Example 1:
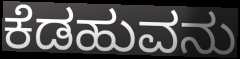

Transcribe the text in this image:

ಕೆಡಹುವನು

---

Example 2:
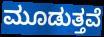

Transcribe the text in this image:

ಮೂಡುತ್ತವೆ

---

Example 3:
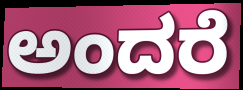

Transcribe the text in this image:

ಅಂದರೆ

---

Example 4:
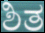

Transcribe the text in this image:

ಶಿತ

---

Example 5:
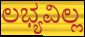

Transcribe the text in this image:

ಲಭ್ಯವಿಲ್ಲ